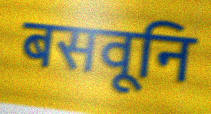
बसवूनि